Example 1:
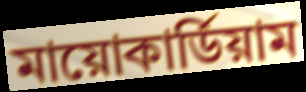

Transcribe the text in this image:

মায়োকার্ডিয়াম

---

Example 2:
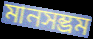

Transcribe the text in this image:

মানসম্ভ্রম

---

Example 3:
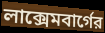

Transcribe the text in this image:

লাক্সেমবার্গের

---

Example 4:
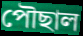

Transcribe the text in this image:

পৌছাল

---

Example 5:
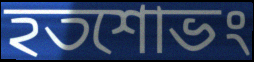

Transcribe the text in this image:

হতশোভং